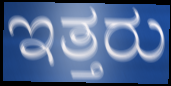
ಇತ್ತರು